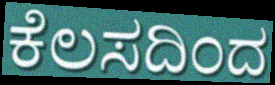
ಕೆಲಸದಿಂದ